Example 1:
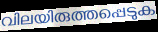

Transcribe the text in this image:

വിലയിരുത്തപ്പെടുക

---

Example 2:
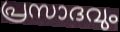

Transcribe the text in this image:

പ്രസാദവും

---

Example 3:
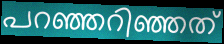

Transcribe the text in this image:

പറഞ്ഞറിഞ്ഞത്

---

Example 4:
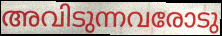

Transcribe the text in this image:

അവിടുന്നവരോടു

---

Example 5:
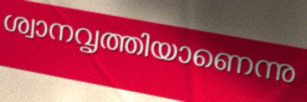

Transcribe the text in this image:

ശ്വാനവൃത്തിയാണെന്നു